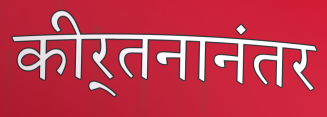
कीर्तनानंतर